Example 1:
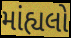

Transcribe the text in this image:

માંહ્યલો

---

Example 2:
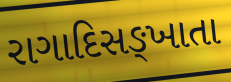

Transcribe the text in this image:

રાગાદિસઙ્ખાતા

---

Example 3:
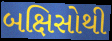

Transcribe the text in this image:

બક્ષિસોથી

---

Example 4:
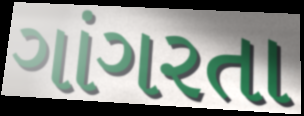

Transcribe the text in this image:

ગાંગરતા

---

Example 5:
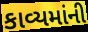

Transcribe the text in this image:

કાવ્યમાંની